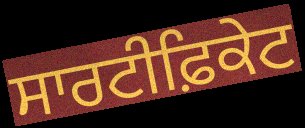
ਸਾਰਟੀਫ਼ਿਕੇਟ